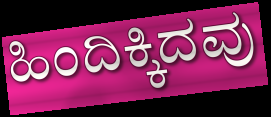
ಹಿಂದಿಕ್ಕಿದವು